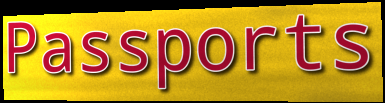
Passports